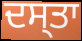
ਦਸ੍ਤਾ